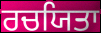
ਰਚਯਿਤਾ